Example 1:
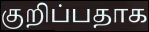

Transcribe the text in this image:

குறிப்பதாக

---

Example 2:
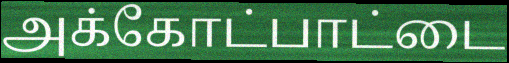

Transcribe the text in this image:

அக்கோட்பாட்டை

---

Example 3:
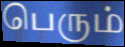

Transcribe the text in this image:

பெரும்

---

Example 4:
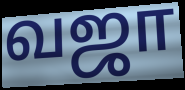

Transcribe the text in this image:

வஜா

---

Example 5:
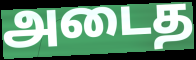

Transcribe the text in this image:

அடைத